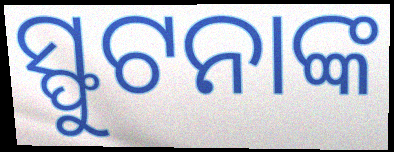
ସ୍ଫୁଟନାଙ୍କ